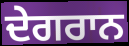
ਦੇਗਰਾਨ